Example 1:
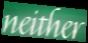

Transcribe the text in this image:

neither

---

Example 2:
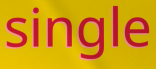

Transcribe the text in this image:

single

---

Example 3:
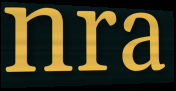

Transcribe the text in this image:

nra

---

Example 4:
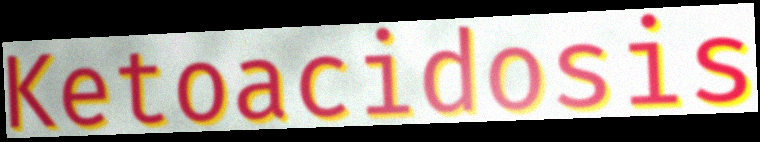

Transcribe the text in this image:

Ketoacidosis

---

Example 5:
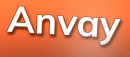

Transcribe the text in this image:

Anvay